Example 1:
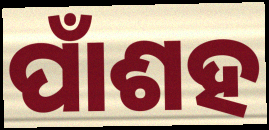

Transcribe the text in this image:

ପାଁଶହ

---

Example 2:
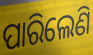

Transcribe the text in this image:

ପାରିଲେଣି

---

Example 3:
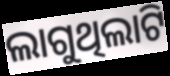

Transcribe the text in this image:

ଲାଗୁଥିଲାଟି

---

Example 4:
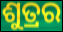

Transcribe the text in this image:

ଶୁତ୍ରର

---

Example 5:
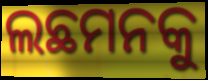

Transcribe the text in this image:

ଲଛମନକୁ